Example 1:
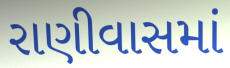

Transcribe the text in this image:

રાણીવાસમાં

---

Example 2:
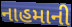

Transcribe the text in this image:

નાહમાની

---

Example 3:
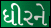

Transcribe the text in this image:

ધીરને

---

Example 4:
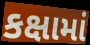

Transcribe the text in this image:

કક્ષામાં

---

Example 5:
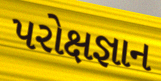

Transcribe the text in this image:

પરોક્ષજ્ઞાન